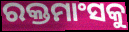
ରକ୍ତମାଂସକୁ